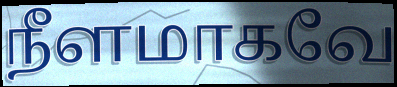
நீளமாகவே